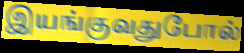
இயங்குவதுபோல்